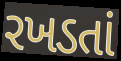
રખડતાં